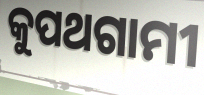
କୁପଥଗାମୀ